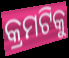
କ୍ରମଟିକୁ